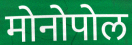
मोनोपोल